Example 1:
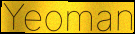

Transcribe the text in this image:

Yeoman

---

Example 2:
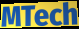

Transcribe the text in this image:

MTech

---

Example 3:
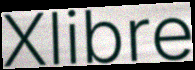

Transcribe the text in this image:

Xlibre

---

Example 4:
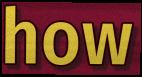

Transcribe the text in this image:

how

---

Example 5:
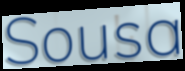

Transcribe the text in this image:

Sousa